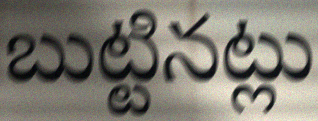
బుట్టినట్లు